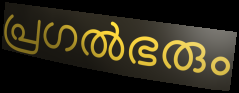
പ്രഗൽഭരും